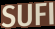
SUFI